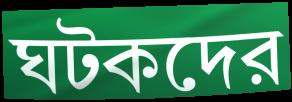
ঘটকদের